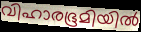
വിഹാരഭൂമിയിൽ